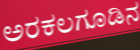
ಅರಕಲಗೂಡಿನ